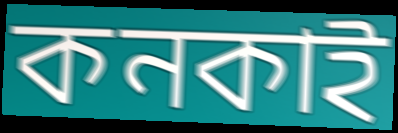
কনকাই